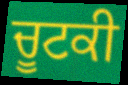
ਚੂਟਕੀ